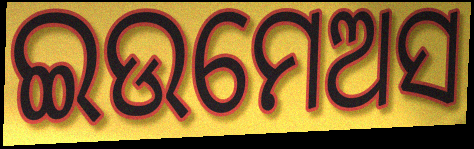
ଇଉମେଅସ